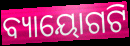
ବ୍ୟାୟୋଗଟି